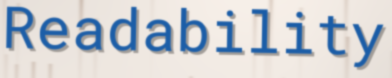
Readability